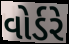
વોર્ડરે